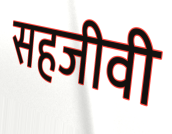
सहजीवी